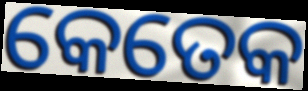
କେତେକ